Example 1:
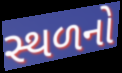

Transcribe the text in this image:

સ્થળનો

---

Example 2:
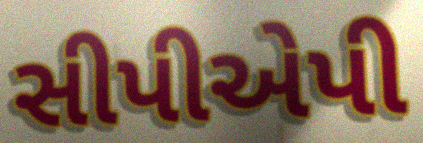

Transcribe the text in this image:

સીપીએપી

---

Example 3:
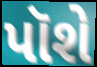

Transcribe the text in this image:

પૉશે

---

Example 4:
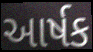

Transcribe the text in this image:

આર્ષક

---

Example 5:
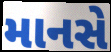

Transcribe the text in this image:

માનસે